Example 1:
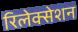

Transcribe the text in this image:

रिलेक्सेशन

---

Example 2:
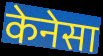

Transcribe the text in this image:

केनेसा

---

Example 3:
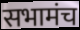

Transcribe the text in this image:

सभामंच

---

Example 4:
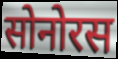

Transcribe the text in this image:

सोनोरस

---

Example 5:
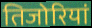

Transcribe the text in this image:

तिजोरियां